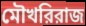
মৌখরিরাজ